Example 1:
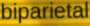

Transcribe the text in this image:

biparietal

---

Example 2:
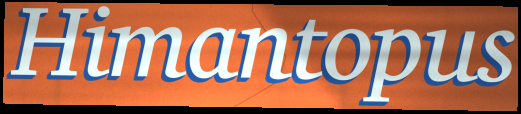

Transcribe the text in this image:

Himantopus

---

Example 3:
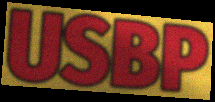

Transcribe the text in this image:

USBP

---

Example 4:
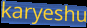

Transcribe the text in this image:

karyeshu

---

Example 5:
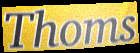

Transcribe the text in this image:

Thoms